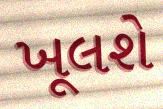
ખૂલશે